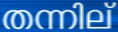
തന്നില്